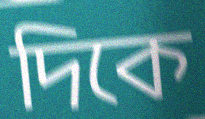
দিকে